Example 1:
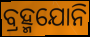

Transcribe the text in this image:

ବ୍ରହ୍ମଯୋନି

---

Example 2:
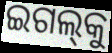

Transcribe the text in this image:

ଇଗଲ୍‌କୁ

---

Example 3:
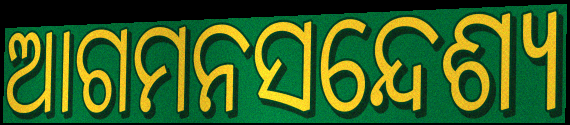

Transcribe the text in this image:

ଆଗମନସନ୍ଦେଶ୍ୟ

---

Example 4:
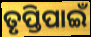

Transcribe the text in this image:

ତୃପ୍ତିପାଇଁ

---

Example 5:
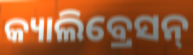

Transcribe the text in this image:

କ୍ୟାଲିବ୍ରେସନ୍